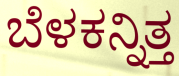
ಬೆಳಕನ್ನಿತ್ತ